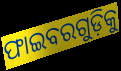
ଫାଇବରଗୁଡ଼ିକୁ